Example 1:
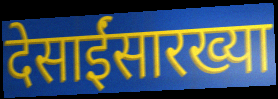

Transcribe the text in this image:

देसाईंसारख्या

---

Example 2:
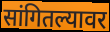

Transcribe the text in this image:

सांगितल्यावर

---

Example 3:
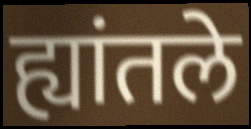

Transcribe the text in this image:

ह्यांतले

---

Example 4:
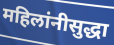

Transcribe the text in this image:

महिलांनीसुद्धा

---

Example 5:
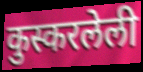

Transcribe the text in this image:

कुस्करलेली